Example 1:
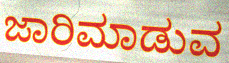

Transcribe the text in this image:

ಜಾರಿಮಾಡುವ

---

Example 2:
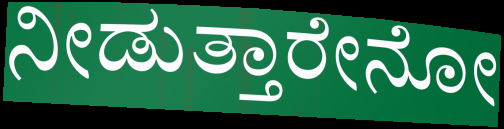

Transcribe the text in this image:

ನೀಡುತ್ತಾರೇನೋ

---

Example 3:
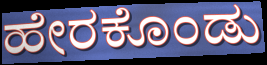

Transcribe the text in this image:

ಹೇರಕೊಂಡು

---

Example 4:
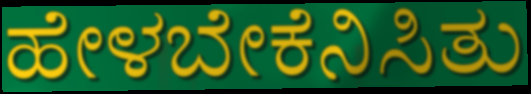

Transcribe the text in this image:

ಹೇಳಬೇಕೆನಿಸಿತು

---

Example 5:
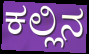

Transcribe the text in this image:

ಕಲ್ಲಿನ